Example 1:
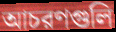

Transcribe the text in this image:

আচরণগুলি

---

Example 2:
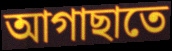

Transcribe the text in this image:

আগাছাতে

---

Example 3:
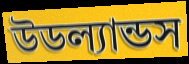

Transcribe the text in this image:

উডল্যান্ডস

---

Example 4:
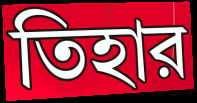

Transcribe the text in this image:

তিহার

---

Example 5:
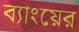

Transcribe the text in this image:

ব্যাংয়ের